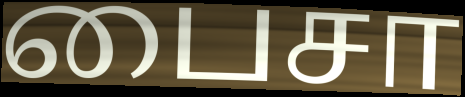
பைசா